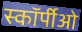
स्कॉर्पीओ